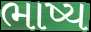
ભાષ્ય